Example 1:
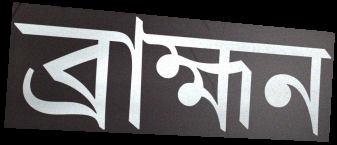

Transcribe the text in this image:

ব্ৰাহ্মন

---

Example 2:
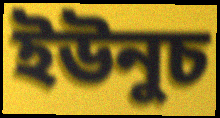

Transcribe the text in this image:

ইউনুচ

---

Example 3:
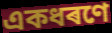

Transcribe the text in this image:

একধৰণে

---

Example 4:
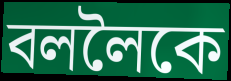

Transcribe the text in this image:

বললৈকে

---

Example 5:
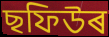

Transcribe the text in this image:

ছফিউৰ